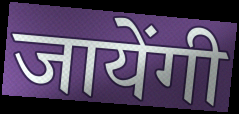
जायेंगी